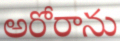
అరోరాను